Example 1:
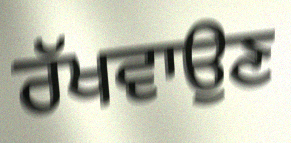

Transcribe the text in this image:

ਰੱਖਵਾਉਣ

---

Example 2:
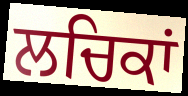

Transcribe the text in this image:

ਲਚਿਕਾਂ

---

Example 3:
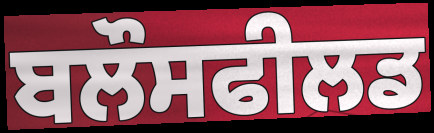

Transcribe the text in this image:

ਬਲੌਸਫੀਲਡ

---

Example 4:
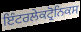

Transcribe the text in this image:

ਇੰਟਰਲੇਕਟ੍ਰੋਨਿਕਸ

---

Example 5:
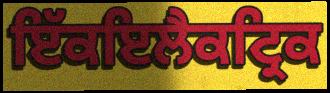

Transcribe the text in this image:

ਇੱਕਇਲੈਕਟ੍ਰਿਕ